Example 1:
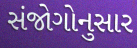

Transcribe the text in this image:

સંજોગોનુસાર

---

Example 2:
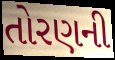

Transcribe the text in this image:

તોરણની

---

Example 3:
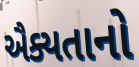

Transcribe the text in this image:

ઐક્યતાનો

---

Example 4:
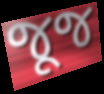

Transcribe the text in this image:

જૂજ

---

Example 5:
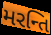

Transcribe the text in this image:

મરન્તિ